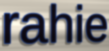
rahie